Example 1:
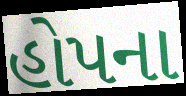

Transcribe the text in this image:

હોપના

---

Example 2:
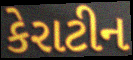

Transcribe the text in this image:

કેરાટીન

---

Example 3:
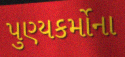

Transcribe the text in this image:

પુણ્યકર્મોના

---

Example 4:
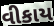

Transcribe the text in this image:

વીકાય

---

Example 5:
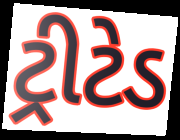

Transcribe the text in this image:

ટ્રીટેડ